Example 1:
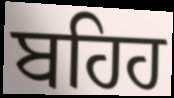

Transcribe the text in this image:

ਬਹਿਹ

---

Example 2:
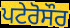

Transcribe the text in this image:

ਪਟੇਰੋਸੌਰ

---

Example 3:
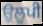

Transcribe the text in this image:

ਉਲੂਪੀ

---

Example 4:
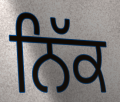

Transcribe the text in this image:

ਨਿੱਕ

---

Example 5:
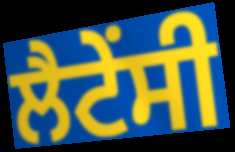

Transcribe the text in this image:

ਲੈਟੇਂਸੀ